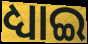
ଧ୍ୟାଇ